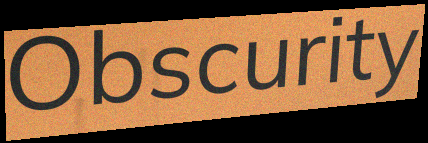
Obscurity